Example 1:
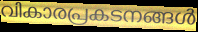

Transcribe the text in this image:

വികാരപ്രകടനങ്ങൾ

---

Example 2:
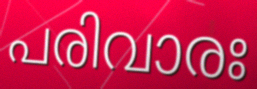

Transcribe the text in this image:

പരിവാരഃ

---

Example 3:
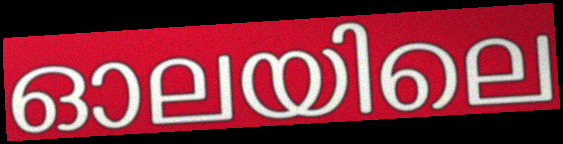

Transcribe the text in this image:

ഓലയിലെ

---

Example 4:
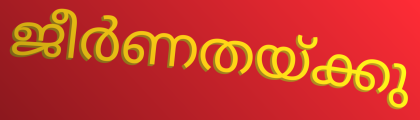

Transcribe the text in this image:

ജീർണതയ്ക്കു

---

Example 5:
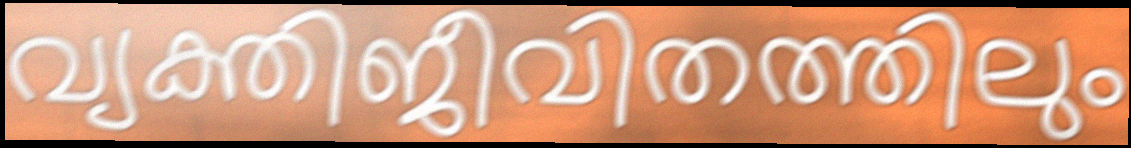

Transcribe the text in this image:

വ്യക്തിജീവിതത്തിലും